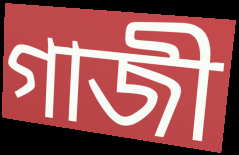
গাজী